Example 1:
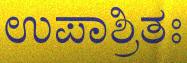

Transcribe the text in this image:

ಉಪಾಶ್ರಿತಃ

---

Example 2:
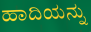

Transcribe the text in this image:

ಹಾದಿಯನ್ನು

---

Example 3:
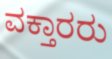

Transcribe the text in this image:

ವಕ್ತಾರರು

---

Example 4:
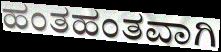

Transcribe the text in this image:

ಹಂತಹಂತವಾಗಿ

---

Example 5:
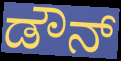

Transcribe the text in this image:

ಡೌನ್